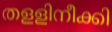
തളളിനീക്കി